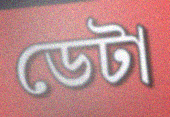
ডেটা